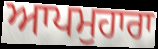
ਆਪਮੁਹਾਰਾ